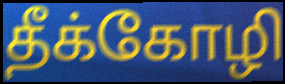
தீக்கோழி